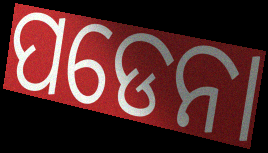
ପଡେନା